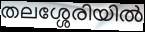
തലശ്ശേരിയിൽ